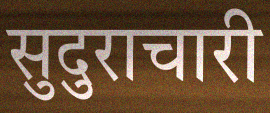
सुदुराचारी